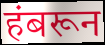
हंबरून